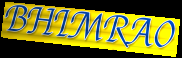
BHIMRAO